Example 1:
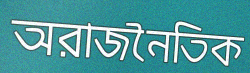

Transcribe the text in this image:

অরাজনৈতিক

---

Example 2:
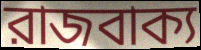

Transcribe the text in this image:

রাজবাক্য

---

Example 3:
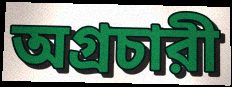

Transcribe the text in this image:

অগ্রচারী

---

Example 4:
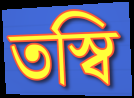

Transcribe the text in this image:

তস্বি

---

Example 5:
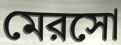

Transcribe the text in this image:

মেরসো